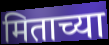
मिताच्या